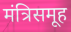
मंत्रिसमूह